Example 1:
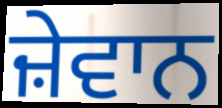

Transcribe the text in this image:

ਜ਼ੇਵਾਨ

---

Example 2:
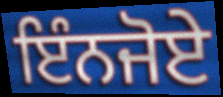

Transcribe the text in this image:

ਇੰਨਜੋਏ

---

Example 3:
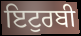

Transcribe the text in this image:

ਇਟੁਰਬੀ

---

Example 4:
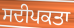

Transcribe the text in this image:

ਸਦੀਪਕਤਾ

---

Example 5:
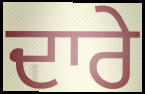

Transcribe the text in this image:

ਦਾਰੇ